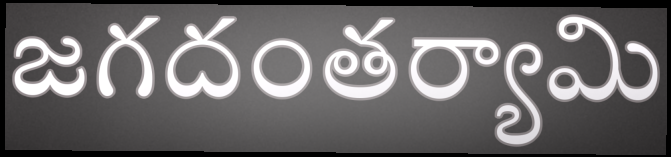
జగదంతర్యామి